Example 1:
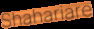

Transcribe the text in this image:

Shahariare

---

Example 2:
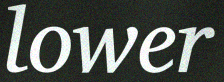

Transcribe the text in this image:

lower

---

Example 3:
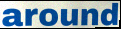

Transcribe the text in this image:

around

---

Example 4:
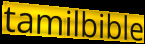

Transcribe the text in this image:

tamilbible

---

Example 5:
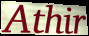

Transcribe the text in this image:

Athir